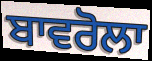
ਬਾਵਰੋਲਾ